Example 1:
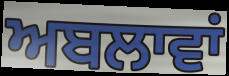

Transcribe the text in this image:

ਅਬਲਾਵਾਂ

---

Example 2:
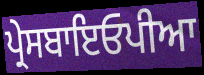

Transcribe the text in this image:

ਪ੍ਰੇਸਬਾਇਓਪੀਆ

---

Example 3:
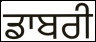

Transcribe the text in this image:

ਡਾਬਰੀ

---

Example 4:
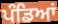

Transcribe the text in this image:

ਪੰਡਿਆਂ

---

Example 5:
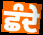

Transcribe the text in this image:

ਛੰਦੇ